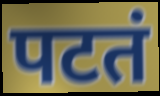
पटतं